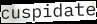
cuspidate